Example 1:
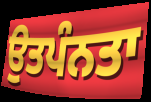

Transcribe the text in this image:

ਉਤਪੰਨਤਾ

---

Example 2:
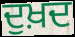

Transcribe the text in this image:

ਦੁਖ਼ਦ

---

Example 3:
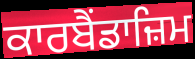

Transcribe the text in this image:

ਕਾਰਬੈਂਡਾਜ਼ਿਮ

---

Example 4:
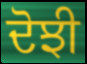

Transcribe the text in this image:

ਦੋਝੀ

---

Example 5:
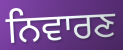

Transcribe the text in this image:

ਨਿਵਾਰਣ